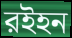
রইহন